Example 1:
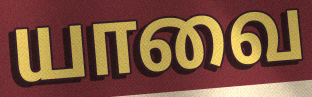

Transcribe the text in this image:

யாவை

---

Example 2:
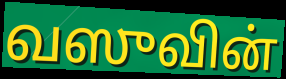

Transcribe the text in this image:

வஸுவின்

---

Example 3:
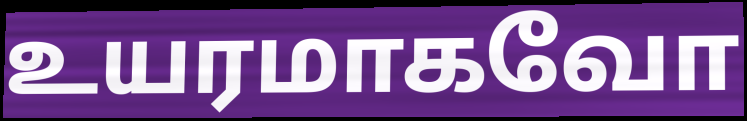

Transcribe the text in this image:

உயரமாகவோ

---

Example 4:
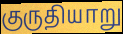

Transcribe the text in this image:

குருதியாறு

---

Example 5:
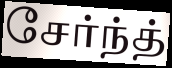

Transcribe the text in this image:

சேர்ந்த்